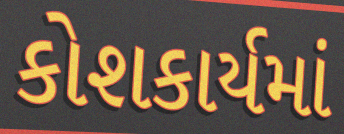
કોશકાર્યમાં